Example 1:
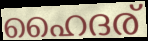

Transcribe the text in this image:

ഹൈദര്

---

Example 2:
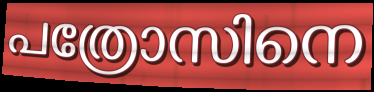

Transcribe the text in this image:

പത്രോസിനെ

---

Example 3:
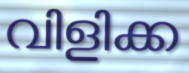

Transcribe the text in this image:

വിളിക്ക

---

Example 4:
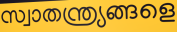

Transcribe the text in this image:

സ്വാതന്ത്ര്യങ്ങളെ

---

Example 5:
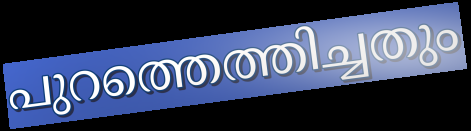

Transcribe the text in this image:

പുറത്തെത്തിച്ചതും